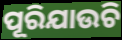
ପୂରିଯାଉଚି